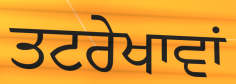
ਤਟਰੇਖਾਵਾਂ